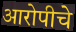
आरोपीचे